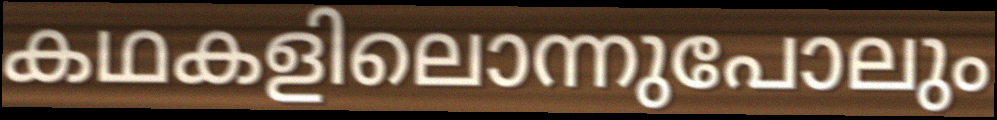
കഥകളിലൊന്നുപോലും